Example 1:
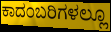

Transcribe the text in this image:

ಕಾದಂಬರಿಗಳಲ್ಲೂ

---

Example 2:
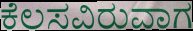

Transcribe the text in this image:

ಕೆಲಸವಿರುವಾಗ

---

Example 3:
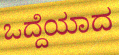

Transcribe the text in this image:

ಒದ್ದೆಯಾದ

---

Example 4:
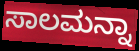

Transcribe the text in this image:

ಸಾಲಮನ್ನಾ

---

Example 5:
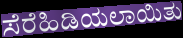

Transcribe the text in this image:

ಸೆರೆಹಿಡಿಯಲಾಯಿತು